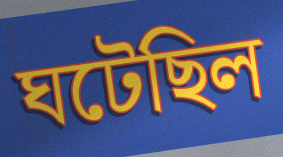
ঘটেছিল